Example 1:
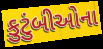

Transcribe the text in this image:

કુટુંબીઓના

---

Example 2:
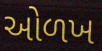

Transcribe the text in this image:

ઓળખ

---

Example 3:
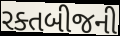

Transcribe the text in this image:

રક્તબીજની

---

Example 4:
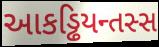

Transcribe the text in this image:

આકડ્ઢિયન્તસ્સ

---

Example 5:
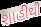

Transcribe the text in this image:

શાહીથી